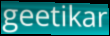
geetikar